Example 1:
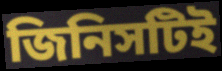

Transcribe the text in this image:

জিনিসটিই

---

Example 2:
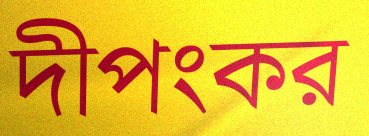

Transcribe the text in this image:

দীপংকর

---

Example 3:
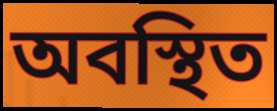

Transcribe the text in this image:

অবস্থিত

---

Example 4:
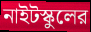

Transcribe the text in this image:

নাইটস্কুলের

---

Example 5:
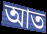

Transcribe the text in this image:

আত